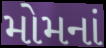
મોમનાં